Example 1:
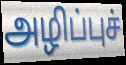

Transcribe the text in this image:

அழிப்புச்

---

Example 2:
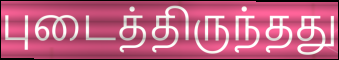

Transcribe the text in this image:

புடைத்திருந்தது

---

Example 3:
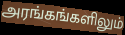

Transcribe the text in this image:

அரங்கங்களிலும்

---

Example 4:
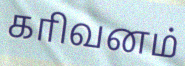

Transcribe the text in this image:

கரிவனம்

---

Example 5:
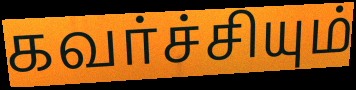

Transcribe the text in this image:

கவர்ச்சியும்